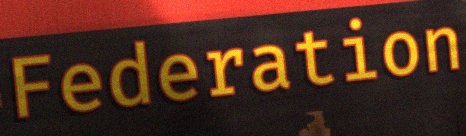
Federation